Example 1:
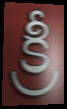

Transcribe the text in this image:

క్రీ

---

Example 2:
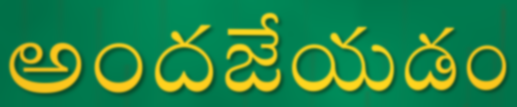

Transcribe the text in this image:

అందజేయడం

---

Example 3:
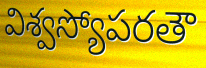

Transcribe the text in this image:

విశ్వస్యోపరతౌ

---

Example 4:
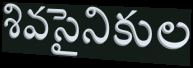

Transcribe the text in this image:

శివసైనికుల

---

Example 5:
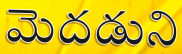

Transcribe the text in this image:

మెదడుని